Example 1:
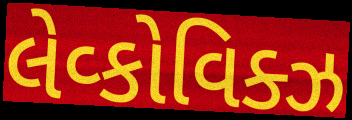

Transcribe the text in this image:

લેવ્કોવિક્ઝ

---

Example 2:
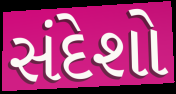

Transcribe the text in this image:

સંદેશો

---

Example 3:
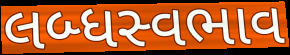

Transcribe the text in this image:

લબ્ધસ્વભાવ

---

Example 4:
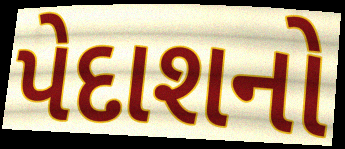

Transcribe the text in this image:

પેદાશનો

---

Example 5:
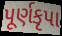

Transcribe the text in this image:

પૂર્ણકૃપા